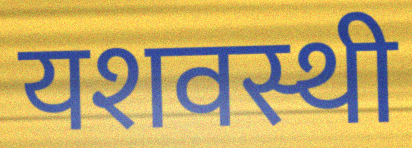
यशवस्थी